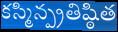
కస్మిన్ప్రతిష్ఠిత